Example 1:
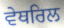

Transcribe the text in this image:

ਵੇਥਰਿਲ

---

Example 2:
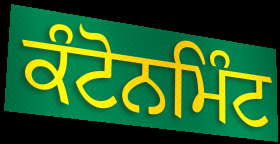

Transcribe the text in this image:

ਕੰਟੋਨਮਿੰਟ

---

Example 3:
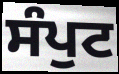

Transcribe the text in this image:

ਸੰਪੁਟ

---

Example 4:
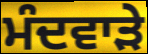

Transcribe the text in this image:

ਮੰਦਵਾੜੇ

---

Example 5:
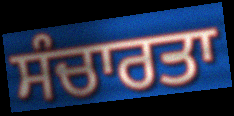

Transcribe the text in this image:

ਸੰਚਾਰਤਾ